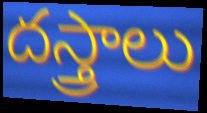
దస్త్రాలు